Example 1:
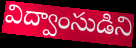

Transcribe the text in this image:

విద్వాంసుడిని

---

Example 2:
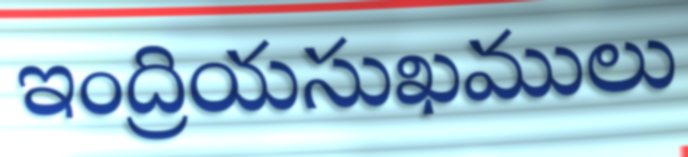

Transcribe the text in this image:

ఇంద్రియసుఖములు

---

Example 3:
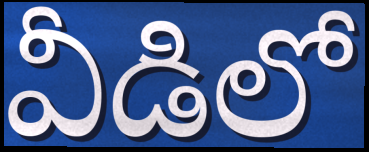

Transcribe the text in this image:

వీడిలో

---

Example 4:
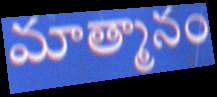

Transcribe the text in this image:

మాత్మానం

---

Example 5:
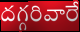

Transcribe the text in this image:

దగ్గరివారే